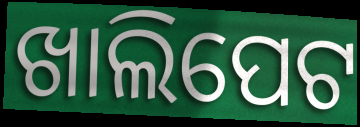
ଖାଲିପେଟ